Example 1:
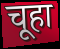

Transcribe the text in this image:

चूहा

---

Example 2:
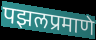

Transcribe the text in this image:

पझलप्रमाणे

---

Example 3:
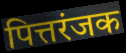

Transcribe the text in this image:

पित्तरंजक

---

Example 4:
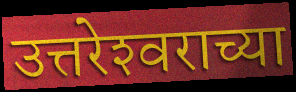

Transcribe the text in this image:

उत्तरेश्वराच्या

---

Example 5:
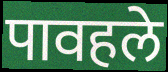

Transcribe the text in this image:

पावहले